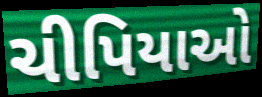
ચીપિયાઓ